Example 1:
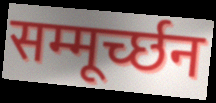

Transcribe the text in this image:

सम्मूर्च्छन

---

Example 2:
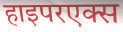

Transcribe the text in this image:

हाइपरएक्स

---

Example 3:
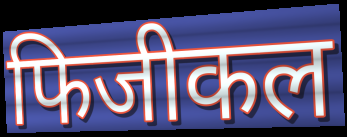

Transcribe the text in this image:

फिजीकल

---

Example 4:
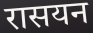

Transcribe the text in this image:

रासयन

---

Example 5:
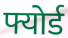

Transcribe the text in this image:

फ्योर्ड